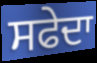
ਸਫੇਦਾ